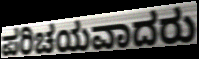
ಪರಿಚಯವಾದರು